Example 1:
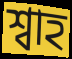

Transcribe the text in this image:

শ্বাহ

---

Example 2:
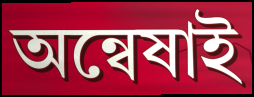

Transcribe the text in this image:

অন্বেষাই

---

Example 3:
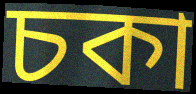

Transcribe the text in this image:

চকা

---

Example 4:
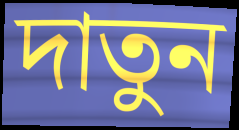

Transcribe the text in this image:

দাতুন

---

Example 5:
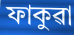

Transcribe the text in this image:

ফাকুৱা